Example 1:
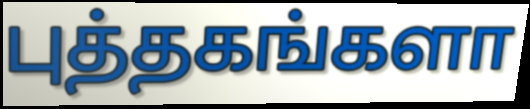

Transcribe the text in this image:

புத்தகங்களா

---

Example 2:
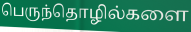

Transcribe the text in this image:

பெருந்தொழில்களை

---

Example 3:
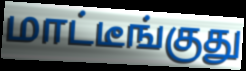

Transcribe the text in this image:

மாட்டீங்குது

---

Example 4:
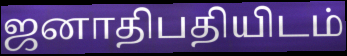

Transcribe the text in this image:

ஜனாதிபதியிடம்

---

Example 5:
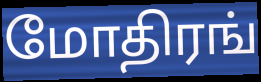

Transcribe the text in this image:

மோதிரங்